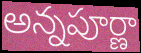
అన్నపూర్ణా